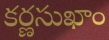
కర్ణసుఖాం